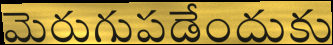
మెరుగుపడేందుకు